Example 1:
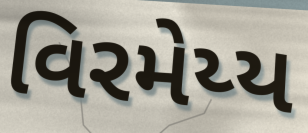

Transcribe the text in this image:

વિરમેય્ય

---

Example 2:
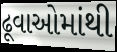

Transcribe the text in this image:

ઢૂવાઓમાંથી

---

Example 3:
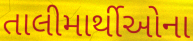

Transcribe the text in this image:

તાલીમાર્થીઓના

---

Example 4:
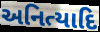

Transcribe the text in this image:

અનિત્યાદિ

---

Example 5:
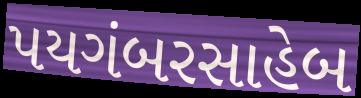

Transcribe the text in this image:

પયગંબરસાહેબ